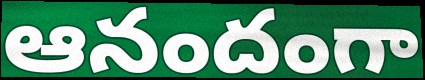
ఆనందంగా